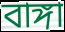
বাঙ্গা